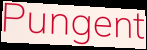
Pungent